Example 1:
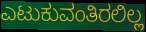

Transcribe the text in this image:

ಎಟುಕುವಂತಿರಲಿಲ್ಲ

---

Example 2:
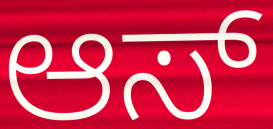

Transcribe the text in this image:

ಆಸ್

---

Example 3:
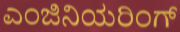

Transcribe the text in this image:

ಎಂಜಿನಿಯರಿಂಗ್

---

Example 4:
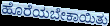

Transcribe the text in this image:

ಹೊರೆಯಬೇಕಾಯಿತು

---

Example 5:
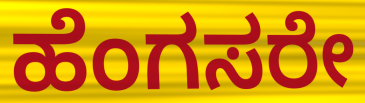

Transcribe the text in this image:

ಹೆಂಗಸರೇ